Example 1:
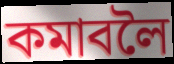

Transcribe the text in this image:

কমাবলৈ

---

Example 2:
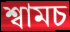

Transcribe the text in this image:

শ্বামচ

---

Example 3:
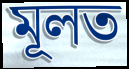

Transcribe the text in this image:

মূলত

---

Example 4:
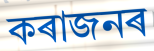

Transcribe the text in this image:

কৰাজনৰ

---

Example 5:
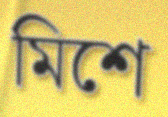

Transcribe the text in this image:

মিশে